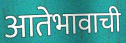
आतेभावाची